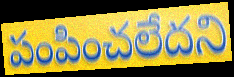
పంపించలేదని